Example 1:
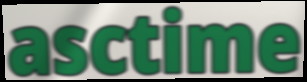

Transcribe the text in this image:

asctime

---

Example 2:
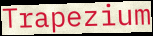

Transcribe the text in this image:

Trapezium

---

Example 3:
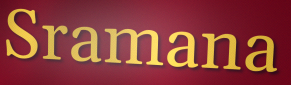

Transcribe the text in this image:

Sramana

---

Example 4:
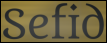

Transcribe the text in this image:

Sefid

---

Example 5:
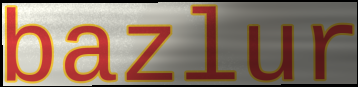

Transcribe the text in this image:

bazlur